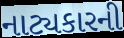
નાટ્યકારની